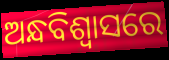
ଅନ୍ଧବିଶ୍ବାସରେ